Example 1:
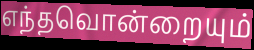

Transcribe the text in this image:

எந்தவொன்றையும்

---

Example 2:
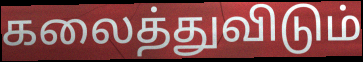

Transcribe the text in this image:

கலைத்துவிடும்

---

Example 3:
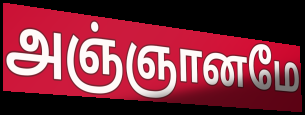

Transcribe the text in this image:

அஞ்ஞானமே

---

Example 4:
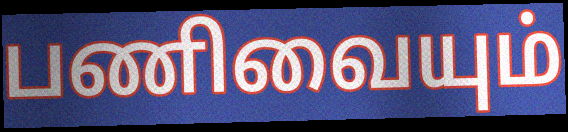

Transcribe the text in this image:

பணிவையும்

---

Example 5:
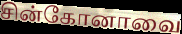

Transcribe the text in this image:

சின்கோனாவை